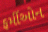
ફર્મીઓન